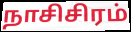
நாசிசிரம்